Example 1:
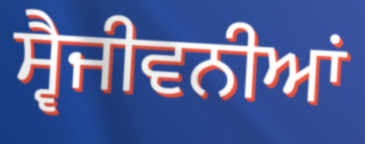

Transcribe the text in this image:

ਸ੍ਵੈਜੀਵਨੀਆਂ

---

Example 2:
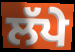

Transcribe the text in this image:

ਲੱਪੇ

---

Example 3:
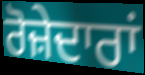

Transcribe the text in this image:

ਰੋਜ਼ੇਦਾਰਾਂ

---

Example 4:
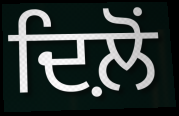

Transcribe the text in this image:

ਦਿਲ਼ੋਂ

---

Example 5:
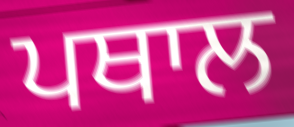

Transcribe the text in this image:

ਪਥਾਲ